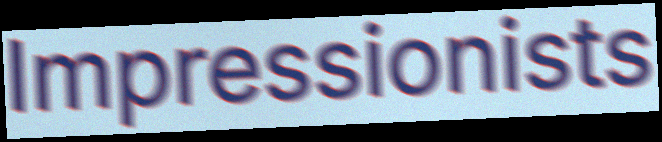
Impressionists